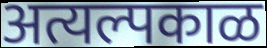
अत्यल्पकाळ